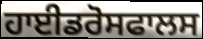
ਹਾਈਡਰੋਸਫਾਲਸ